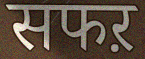
सफऱ